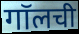
गॉलची